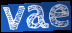
vae